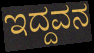
ಇದ್ದವನ